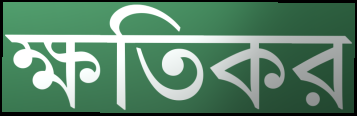
ক্ষতিকর